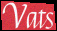
Vats